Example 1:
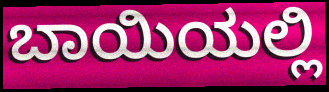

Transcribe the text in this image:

ಬಾಯಿಯಲ್ಲಿ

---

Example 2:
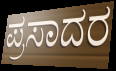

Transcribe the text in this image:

ಪ್ರಸಾದರ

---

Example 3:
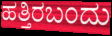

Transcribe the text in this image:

ಹತ್ತಿರಬಂದು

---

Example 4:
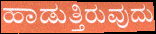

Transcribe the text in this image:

ಹಾಡುತ್ತಿರುವುದು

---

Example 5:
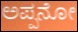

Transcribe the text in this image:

ಅಪ್ಪನೋ